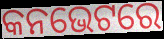
କନଭେଟରେ